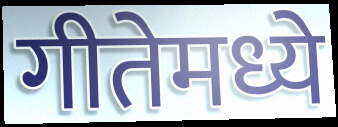
गीतेमध्ये